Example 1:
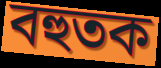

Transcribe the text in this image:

বহুতক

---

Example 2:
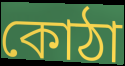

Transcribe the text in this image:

কোঠা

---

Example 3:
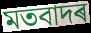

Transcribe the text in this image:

মতবাদৰ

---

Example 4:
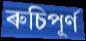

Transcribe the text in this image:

ৰুচিপূৰ্ণ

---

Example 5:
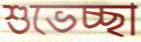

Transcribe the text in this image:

শুভেচ্ছা